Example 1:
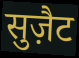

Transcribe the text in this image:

सुज़ैट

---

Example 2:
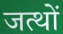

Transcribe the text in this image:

जत्थों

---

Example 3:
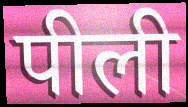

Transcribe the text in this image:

पीली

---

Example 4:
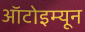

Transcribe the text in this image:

ऑटोइम्यून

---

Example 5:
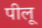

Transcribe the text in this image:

पीलू